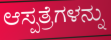
ಆಸ್ಪತ್ರೆಗಳನ್ನು